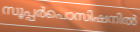
സൂപ്പർപൊസിഷനിൽ